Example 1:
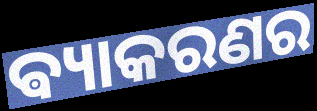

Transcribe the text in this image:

ଵ୍ୟାକରଣର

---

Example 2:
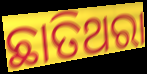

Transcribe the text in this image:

ଛାତିଥରା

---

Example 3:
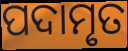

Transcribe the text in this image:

ପଦାମୃତ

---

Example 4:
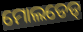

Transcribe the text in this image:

ମୋଲଡେଡ୍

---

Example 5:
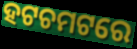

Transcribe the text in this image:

ହଟଚମଟରେ